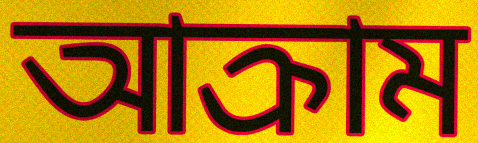
আক্রাম